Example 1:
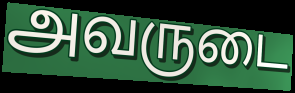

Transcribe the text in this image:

அவருடை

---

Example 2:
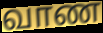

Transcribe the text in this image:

வாண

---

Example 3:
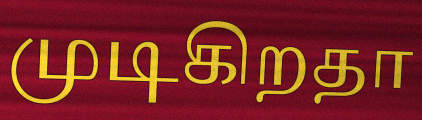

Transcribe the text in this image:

முடிகிறதா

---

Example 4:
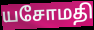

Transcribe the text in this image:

யசோமதி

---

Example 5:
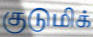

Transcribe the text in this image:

குடுமிக்